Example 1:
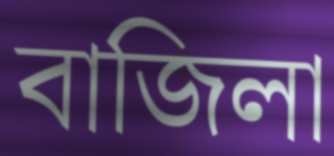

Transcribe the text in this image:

বাজিলা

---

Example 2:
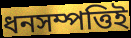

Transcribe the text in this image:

ধনসম্পত্তিই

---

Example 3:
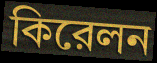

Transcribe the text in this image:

কিরেলন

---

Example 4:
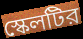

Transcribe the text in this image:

স্কেলটির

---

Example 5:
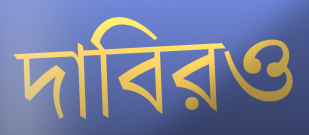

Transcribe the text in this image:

দাবিরও